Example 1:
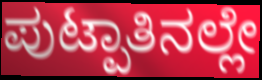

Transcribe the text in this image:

ಪುಟ್ಪಾತಿನಲ್ಲೇ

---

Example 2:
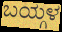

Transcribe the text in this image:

ಬಯ್ಗಳ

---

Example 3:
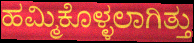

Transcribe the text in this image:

ಹಮ್ಮಿಕೊಳ್ಳಲಾಗಿತ್ತು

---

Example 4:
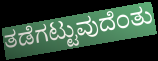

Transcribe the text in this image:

ತಡೆಗಟ್ಟುವುದೆಂತು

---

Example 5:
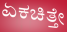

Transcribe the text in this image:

ಏಕಚಿತ್ತೇ